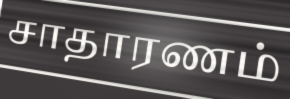
சாதாரணம்